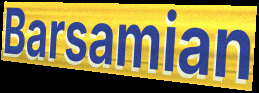
Barsamian